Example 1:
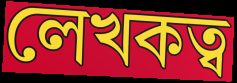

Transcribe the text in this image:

লেখকত্ব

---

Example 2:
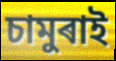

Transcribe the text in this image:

চামুৰাই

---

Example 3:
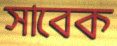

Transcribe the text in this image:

সাবেক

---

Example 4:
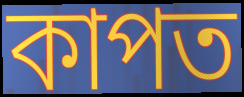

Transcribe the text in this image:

কাপত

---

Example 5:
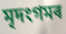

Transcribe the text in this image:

মৃদংগমৰ